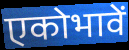
एकोभावें